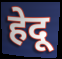
हेदू